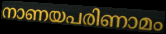
നാണയപരിണാമം